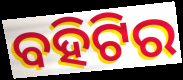
ବହିଟିର